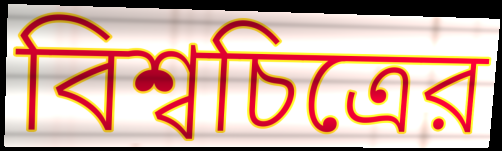
বিশ্বচিত্রের